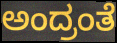
ಅಂದ್ರಂತೆ